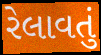
રેલાવતું